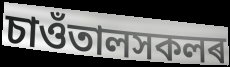
চাওঁতালসকলৰ